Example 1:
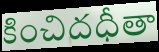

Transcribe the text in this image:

కించిదధీతా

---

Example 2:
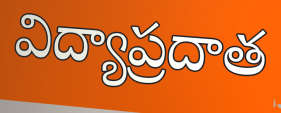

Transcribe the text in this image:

విద్యాప్రదాత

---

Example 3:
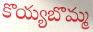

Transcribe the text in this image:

కొయ్యబొమ్మ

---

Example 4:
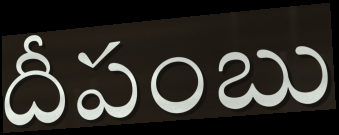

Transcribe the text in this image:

దీపంబు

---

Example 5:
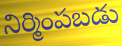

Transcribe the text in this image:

నిర్మింపబడు